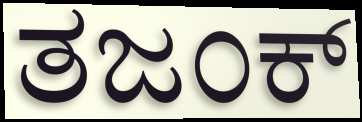
ತಜಂಕ್